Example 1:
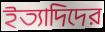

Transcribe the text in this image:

ইত্যাদিদের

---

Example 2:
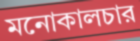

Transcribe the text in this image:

মনোকালচার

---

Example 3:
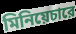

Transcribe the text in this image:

মিনিয়েচারে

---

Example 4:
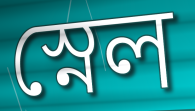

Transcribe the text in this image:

স্নেল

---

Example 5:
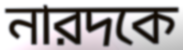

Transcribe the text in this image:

নারদকে